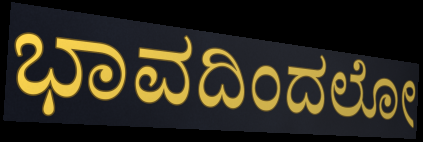
ಭಾವದಿಂದಲೋ